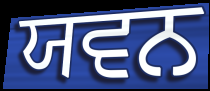
ਯਵਨ